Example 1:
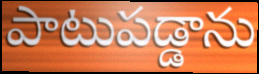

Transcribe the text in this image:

పాటుపడ్డాను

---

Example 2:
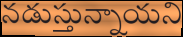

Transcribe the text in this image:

నడుస్తున్నాయని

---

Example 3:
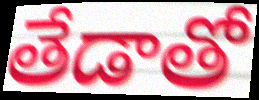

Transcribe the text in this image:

తేడాతో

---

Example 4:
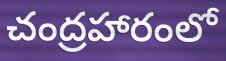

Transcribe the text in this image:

చంద్రహారంలో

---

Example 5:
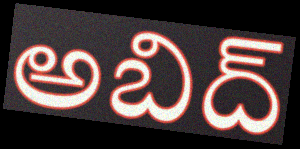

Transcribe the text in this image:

అబిద్